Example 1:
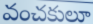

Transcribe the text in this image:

వంచకులూ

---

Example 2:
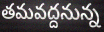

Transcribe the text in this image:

తమవద్దనున్న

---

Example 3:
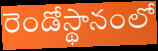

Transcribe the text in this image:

రెండోస్థానంలో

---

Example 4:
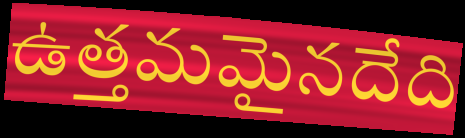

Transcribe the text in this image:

ఉత్తమమైనదేది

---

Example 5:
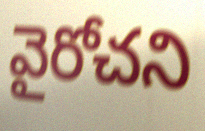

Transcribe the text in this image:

వైరోచని